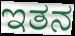
ಇತನ